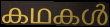
കഥകൾ